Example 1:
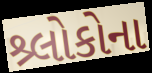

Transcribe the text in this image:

શ્ર્લોકોના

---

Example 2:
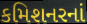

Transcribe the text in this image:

કમિશનરનાં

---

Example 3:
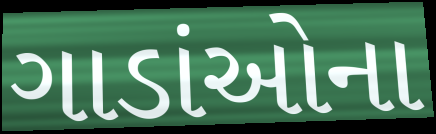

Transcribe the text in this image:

ગાડાંઓના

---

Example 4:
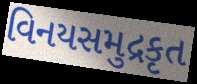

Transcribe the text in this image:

વિનયસમુદ્રકૃત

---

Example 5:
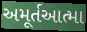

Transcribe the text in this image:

અમૂર્તઆત્મા